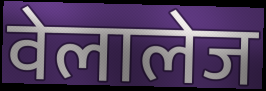
वेलालेज